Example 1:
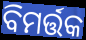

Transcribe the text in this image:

ବିମର୍ତ୍ତକ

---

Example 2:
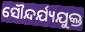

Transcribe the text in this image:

ସୌନ୍ଦର୍ଯ୍ୟଯୁକ୍ତ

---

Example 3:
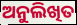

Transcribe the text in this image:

ଅନୁଲିଖିତ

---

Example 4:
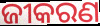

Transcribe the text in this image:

ଜୀକରଣ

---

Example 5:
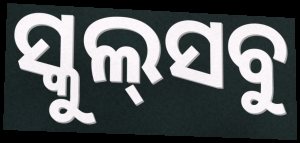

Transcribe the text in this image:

ସ୍କୁଲ୍‍ସବୁ